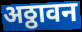
अठ्ठावन